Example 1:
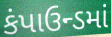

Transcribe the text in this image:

કંપાઉન્ડમાં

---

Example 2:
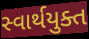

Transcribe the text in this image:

સ્વાર્થયુક્ત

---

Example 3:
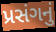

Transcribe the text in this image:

પ્રસંગનું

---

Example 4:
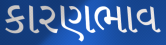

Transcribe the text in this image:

કારણભાવ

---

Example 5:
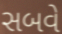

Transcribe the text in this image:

સબવે